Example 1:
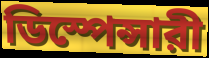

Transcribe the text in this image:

ডিস্পেন্সারী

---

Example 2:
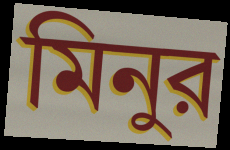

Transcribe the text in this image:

মিনুর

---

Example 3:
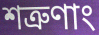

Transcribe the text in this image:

শত্রুণাং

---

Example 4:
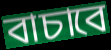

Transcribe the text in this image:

বাচাবে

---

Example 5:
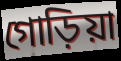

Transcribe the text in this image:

গোড়িয়া